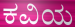
ಕವಿಯ